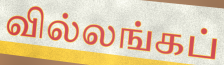
வில்லங்கப்